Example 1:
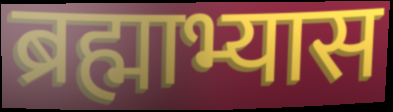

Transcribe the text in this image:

ब्रह्माभ्यास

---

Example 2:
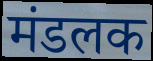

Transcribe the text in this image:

मंडलक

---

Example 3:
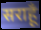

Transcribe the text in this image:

सराहूँ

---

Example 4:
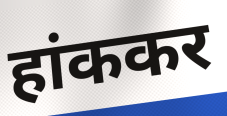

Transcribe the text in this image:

हांककर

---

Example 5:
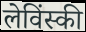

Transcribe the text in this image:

लेविंस्की